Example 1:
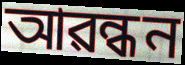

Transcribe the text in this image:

আৱন্ধন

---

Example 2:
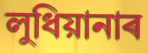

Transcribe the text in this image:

লুধিয়ানাৰ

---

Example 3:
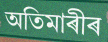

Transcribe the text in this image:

অতিমাৰীৰ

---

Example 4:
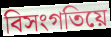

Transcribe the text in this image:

বিসংগতিয়ে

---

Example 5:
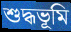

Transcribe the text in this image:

শুদ্ধভূমি